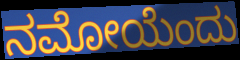
ನಮೋಯೆಂದು